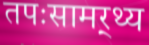
तपःसामर्थ्य